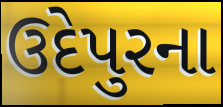
ઉદેપુરના